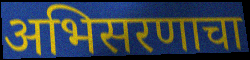
अभिसरणाचा